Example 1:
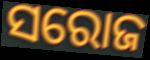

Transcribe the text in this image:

ସରୋଜ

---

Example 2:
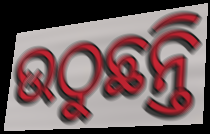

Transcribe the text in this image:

ଉଠୁଛନ୍ତି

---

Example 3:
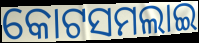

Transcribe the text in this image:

କୋଟସମଲାଇ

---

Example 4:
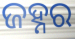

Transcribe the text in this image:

ଜହ୍ନର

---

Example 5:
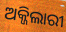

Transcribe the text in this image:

ଅକ୍ଜିଲାରୀ